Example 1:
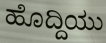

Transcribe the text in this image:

ಹೊದ್ದಿಯು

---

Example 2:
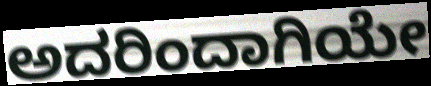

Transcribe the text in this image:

ಅದರಿಂದಾಗಿಯೇ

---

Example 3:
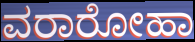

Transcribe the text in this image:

ವರಾರೋಹಾ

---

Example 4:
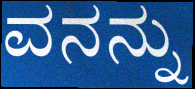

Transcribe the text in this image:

ವನನ್ನು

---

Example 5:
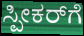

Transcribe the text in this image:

ಸ್ಪೀಕರ್‌ಗೆ